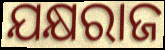
ଯକ୍ଷରାଜ